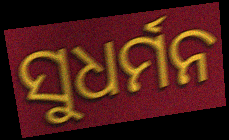
ସୁଧର୍ମନ